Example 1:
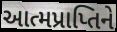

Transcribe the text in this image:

આત્મપ્રાપ્તિને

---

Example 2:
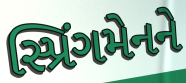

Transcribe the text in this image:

સ્પ્રિંગમેનને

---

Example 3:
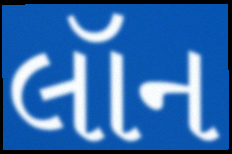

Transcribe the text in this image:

લૉન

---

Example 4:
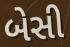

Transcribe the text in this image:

બેસી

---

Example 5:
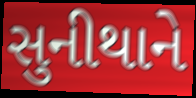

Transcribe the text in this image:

સુનીથાને